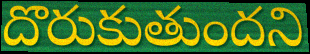
దొరుకుతుందని